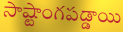
సాష్టాంగపడ్డాయి